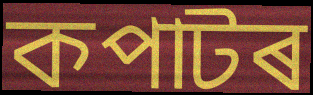
কপাটৰ